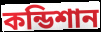
কন্ডিশান